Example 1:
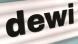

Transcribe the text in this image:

dewi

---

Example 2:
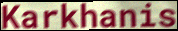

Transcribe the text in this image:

Karkhanis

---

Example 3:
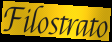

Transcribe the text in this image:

Filostrato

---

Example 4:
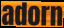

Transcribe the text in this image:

adorn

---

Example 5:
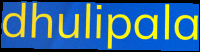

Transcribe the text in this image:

dhulipala